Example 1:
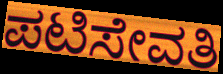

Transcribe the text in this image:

ಪಟಿಸೇವತಿ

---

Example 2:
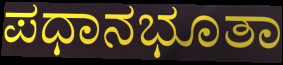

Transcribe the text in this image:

ಪಧಾನಭೂತಾ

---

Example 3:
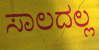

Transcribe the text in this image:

ಸಾಲದಲ್ಲ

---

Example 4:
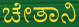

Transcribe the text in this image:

ಚೇತಾನಿ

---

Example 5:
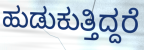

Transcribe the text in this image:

ಹುಡುಕುತ್ತಿದ್ದರೆ